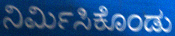
ನಿರ್ಮಿಸಿಕೊಂಡು